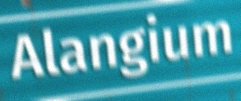
Alangium